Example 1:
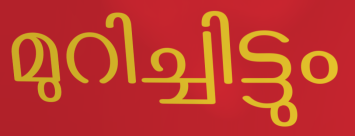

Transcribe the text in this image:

മുറിച്ചിട്ടും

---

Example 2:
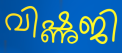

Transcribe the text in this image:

വിഷ്ണുജി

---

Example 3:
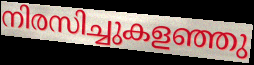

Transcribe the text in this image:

നിരസിച്ചുകളഞ്ഞു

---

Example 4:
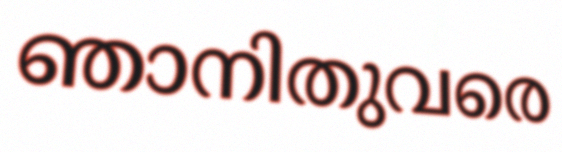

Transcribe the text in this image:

ഞാനിതുവരെ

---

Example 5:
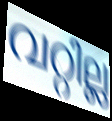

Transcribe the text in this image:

വറ്റില്ല